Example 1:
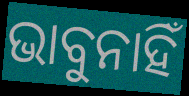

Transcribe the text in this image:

ଭାବୁନାହିଁ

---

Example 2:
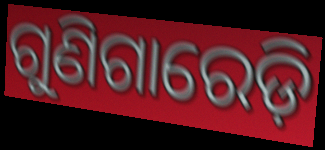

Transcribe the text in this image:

ଗୁଣିଗାରେଡ଼ି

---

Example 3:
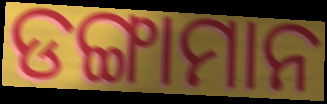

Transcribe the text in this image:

ଡଙ୍ଗାମାନ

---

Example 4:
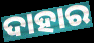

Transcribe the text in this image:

ଦାହାର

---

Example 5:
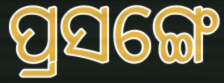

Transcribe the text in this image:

ପ୍ରସଙ୍ଗେ